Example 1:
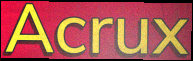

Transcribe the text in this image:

Acrux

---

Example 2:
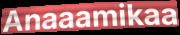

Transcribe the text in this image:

Anaaamikaa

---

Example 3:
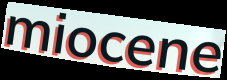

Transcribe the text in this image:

miocene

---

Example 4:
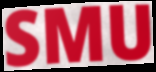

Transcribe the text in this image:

SMU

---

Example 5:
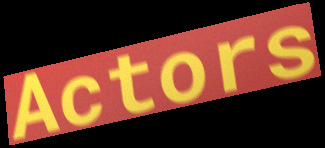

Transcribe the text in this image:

Actors